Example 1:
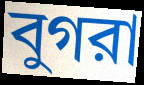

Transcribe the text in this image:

বুগরা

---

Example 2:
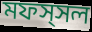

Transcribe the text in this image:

মফস্‌সল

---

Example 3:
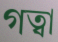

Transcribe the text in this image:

গত্বা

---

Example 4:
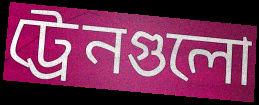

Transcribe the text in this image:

ট্রেনগুলো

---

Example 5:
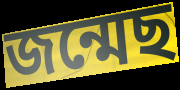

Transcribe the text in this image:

জন্মেছ